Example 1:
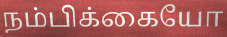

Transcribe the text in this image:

நம்பிக்கையோ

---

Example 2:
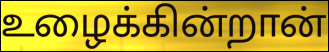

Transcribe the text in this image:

உழைக்கின்றான்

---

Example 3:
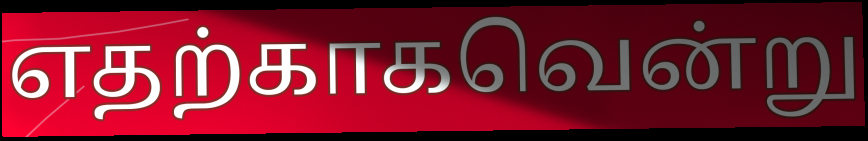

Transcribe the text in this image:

எதற்காகவென்று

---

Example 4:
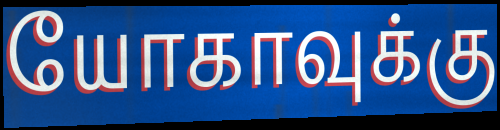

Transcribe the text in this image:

யோகாவுக்கு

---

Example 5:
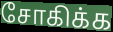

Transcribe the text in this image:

சோகிக்க